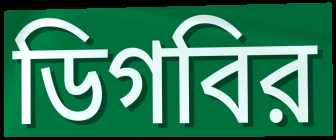
ডিগবির